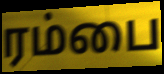
ரம்பை